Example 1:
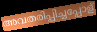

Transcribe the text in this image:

അവതരിപ്പിച്ചപ്പോള്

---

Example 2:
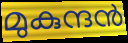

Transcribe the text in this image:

മുകുന്ദൻ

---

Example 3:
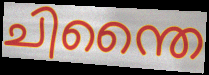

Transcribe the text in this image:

ചിന്തൈ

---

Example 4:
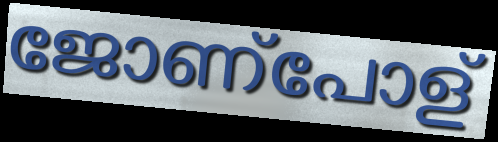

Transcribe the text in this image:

ജോണ്പോള്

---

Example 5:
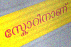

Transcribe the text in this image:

സ്കോറിനാണ്